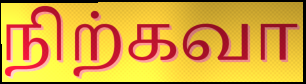
நிற்கவா